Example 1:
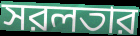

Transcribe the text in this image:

সরলতার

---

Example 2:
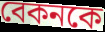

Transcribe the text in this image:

বেকনকে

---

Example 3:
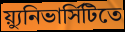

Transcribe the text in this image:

য়্যুনিভার্সিটিতে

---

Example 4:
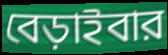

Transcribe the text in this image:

বেড়াইবার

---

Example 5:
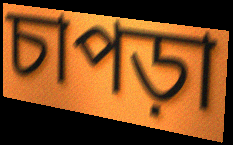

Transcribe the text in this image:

চাপড়া